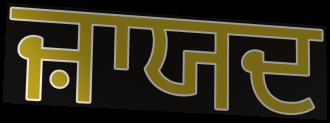
ਜ਼ਾਯਦ